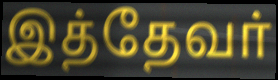
இத்தேவர்